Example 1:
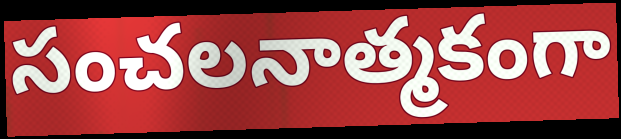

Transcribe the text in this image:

సంచలనాత్మకంగా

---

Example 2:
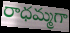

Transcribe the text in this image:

రాధమ్మగా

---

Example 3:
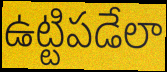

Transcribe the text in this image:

ఉట్టిపడేలా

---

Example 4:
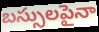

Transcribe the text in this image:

బస్సులపైనా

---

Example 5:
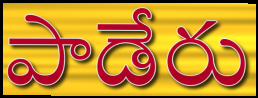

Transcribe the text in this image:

పాడేరు